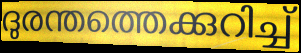
ദുരന്തത്തെക്കുറിച്ച്